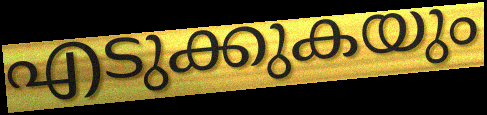
എടുക്കുകയും